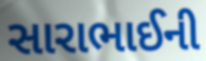
સારાભાઈની